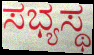
ಸಭ್ಯಸ್ಥ